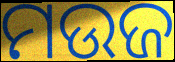
ମଉଜ